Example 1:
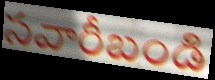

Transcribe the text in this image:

సవారీబండి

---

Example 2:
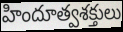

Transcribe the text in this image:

హిందూత్వశక్తులు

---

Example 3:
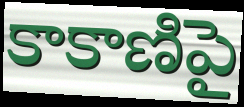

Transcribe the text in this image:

కాకాణిపై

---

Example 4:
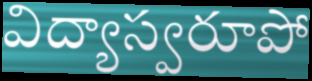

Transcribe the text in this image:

విద్యాస్వరూపో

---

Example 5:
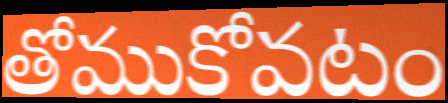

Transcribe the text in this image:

తోముకోవటం